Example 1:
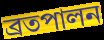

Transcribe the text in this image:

ব্রতপালন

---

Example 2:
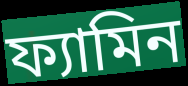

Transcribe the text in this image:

ফ্যামিন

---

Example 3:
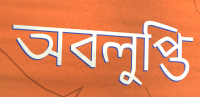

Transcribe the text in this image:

অবলুপ্তি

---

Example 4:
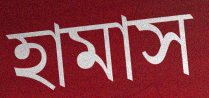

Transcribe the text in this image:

হামাস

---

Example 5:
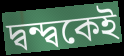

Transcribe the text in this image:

দ্বন্দ্বকেই